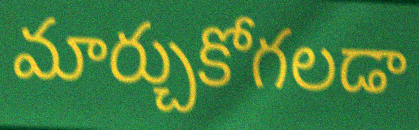
మార్చుకోగలడా